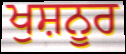
ਖੁਸ਼ਨੂਰ